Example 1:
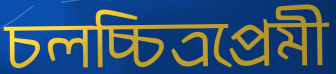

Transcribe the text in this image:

চলচ্চিত্রপ্রেমী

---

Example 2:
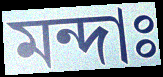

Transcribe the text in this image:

মন্দাঃ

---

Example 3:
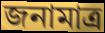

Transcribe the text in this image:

জনামাত্র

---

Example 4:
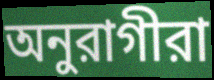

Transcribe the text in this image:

অনুরাগীরা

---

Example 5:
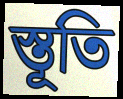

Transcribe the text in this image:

স্তূতি